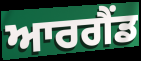
ਆਰਗੈਂਡ